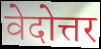
वेदोत्तर